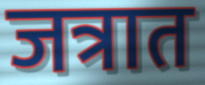
जत्रात